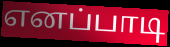
எனப்பாடி